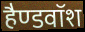
हैण्डवॉश